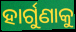
ହାର୍ଗୁଣାକୁ